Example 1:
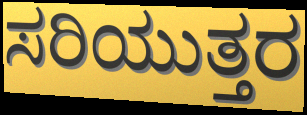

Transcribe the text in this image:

ಸರಿಯುತ್ತರ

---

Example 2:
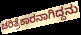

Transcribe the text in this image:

ಚರಿತ್ರೆಕಾರನಾಗಿದ್ದನು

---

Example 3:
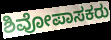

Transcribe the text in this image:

ಶಿವೋಪಾಸಕರು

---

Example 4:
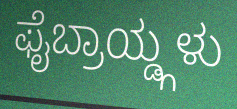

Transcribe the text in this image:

ಫೈಬ್ರಾಯ್ಡ್ಗಳು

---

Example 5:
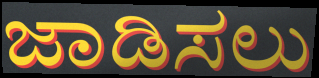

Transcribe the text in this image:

ಜಾಡಿಸಲು